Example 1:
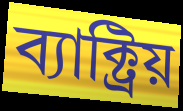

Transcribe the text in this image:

ব্যাক্ট্রিয়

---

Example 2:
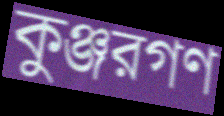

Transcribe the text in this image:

কুঞ্জরগণ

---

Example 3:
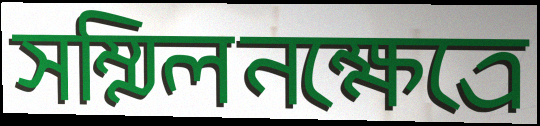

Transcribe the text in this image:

সম্মিলনক্ষেত্রে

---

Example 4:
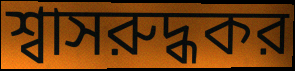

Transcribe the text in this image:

শ্বাসরুদ্ধকর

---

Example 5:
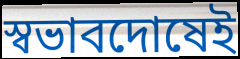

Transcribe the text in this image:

স্বভাবদোষেই